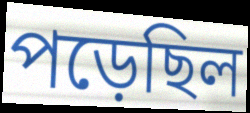
পড়েছিল